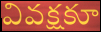
వివక్షకూ